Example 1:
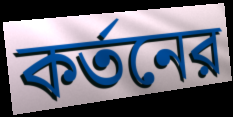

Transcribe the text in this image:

কর্তনের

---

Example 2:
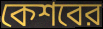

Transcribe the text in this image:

কেশবের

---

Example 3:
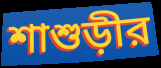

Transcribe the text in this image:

শাশুড়ীর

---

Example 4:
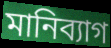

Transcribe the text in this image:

মানিব্যাগ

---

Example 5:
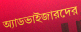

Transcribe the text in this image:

অ্যাডভাইজারদের